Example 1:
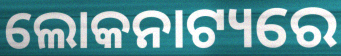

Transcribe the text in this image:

ଲୋକନାଟ୍ୟରେ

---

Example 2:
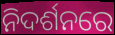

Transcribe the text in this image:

ନିଦର୍ଶନରେ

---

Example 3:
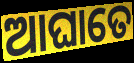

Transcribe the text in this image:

ଆଘାତେ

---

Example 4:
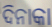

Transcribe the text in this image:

ଦିନାକା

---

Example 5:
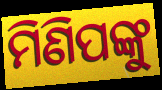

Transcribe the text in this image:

ମିଣିପଙ୍କୁ